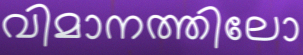
വിമാനത്തിലോ